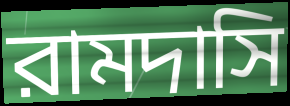
রামদাসি